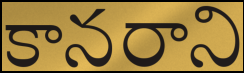
కానరాని